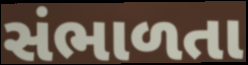
સંભાળતા